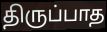
திருப்பாத